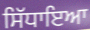
ਸਿੱਧਾਇਆ